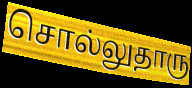
சொல்லுதாரு